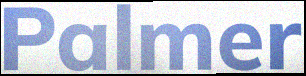
Palmer